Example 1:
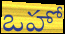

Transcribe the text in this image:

ఒహో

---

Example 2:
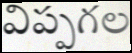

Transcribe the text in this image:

విప్పగల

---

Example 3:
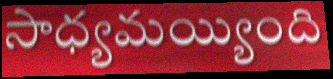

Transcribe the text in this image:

సాధ్యమయ్యింది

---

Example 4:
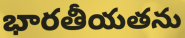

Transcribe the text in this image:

భారతీయతను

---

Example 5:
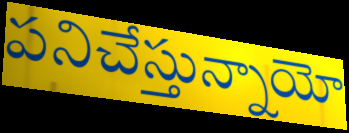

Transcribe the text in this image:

పనిచేస్తున్నాయో